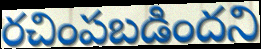
రచింపబడిందని